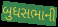
બુધસભાની